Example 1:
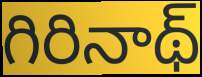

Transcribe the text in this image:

గిరినాథ్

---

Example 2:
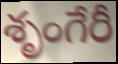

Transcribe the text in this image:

శృంగేరీ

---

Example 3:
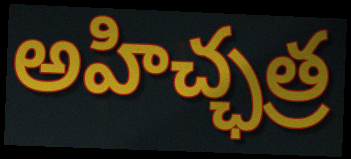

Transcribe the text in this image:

అహిచ్ఛత్ర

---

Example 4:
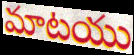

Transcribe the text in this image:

మాటయు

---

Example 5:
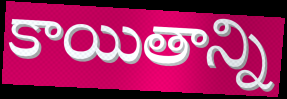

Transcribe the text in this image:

కాయితాన్ని